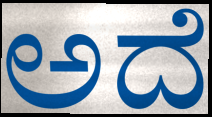
ಅದೆ